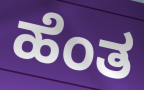
ಹೆಂತ